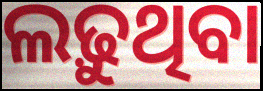
ଲଢ଼ୁଥିବା